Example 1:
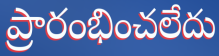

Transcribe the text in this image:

ప్రారంభించలేదు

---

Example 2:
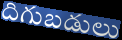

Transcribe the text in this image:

దిగుబడులు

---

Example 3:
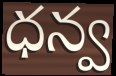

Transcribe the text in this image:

ధన్వ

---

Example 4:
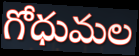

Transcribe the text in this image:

గోధుమల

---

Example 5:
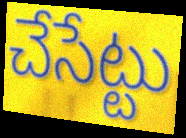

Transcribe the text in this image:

చేసేట్టు